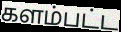
களம்பட்ட